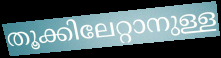
തൂക്കിലേറ്റാനുള്ള